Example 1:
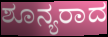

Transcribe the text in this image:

ಶೂನ್ಯರಾದ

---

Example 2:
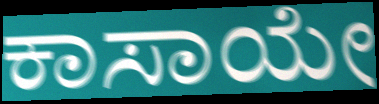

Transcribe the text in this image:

ಕಾಸಾಯೇ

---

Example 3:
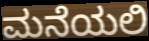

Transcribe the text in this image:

ಮನೆಯಲಿ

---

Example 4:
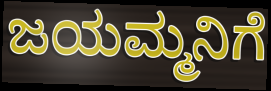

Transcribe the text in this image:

ಜಯಮ್ಮನಿಗೆ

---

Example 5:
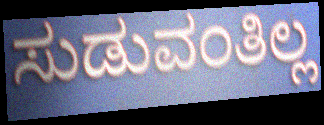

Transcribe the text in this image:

ಸುಡುವಂತಿಲ್ಲ